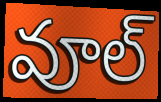
వూల్